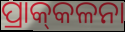
ପ୍ରାକ୍‌କଳନା